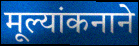
मूल्यांकनाने